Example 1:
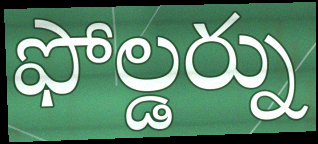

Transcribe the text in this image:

ఫోల్డర్ను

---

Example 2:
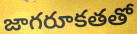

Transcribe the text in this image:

జాగరూకతతో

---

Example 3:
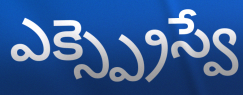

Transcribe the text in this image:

ఎక్స్ప్రెస్వే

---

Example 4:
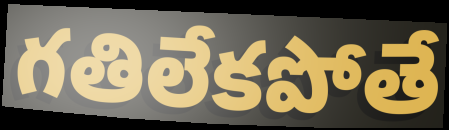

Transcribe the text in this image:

గతిలేకపోతే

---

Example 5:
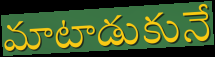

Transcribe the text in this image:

మాటాడుకునే